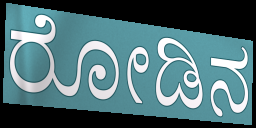
ರೋಡಿನ